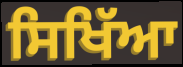
ਸਿਖਿੱਆ